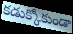
కడుక్కోకుండా